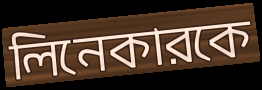
লিনেকারকে